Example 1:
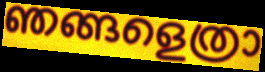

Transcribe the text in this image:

ഞങ്ങളെത്രാ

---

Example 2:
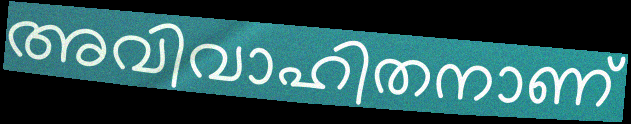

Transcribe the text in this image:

അവിവാഹിതനാണ്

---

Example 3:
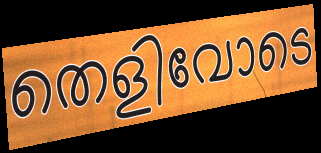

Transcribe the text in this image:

തെളിവോടെ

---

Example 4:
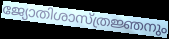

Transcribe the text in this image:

ജ്യോതിശാസ്ത്രജ്ഞനും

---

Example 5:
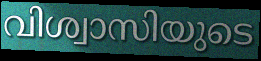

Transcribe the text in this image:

വിശ്വാസിയുടെ